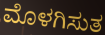
ಮೊಳಗಿಸುತ